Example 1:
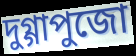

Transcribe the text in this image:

দুগ্গাপুজো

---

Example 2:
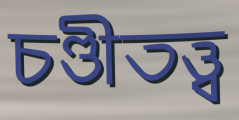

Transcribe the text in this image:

চণ্ডীতত্ত্ব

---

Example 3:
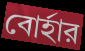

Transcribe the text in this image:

বোর্হার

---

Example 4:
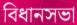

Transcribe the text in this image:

বিধানসভা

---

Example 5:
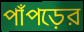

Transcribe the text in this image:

পাঁপড়ের